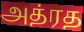
அத்ரத